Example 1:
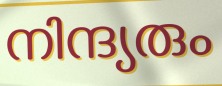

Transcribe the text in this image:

നിന്ദ്യരും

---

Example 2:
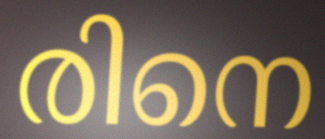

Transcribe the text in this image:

രിനെ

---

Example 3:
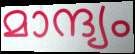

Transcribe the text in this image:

മാന്ദ്യം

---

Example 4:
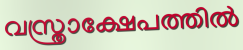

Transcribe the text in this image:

വസ്ത്രാക്ഷേപത്തിൽ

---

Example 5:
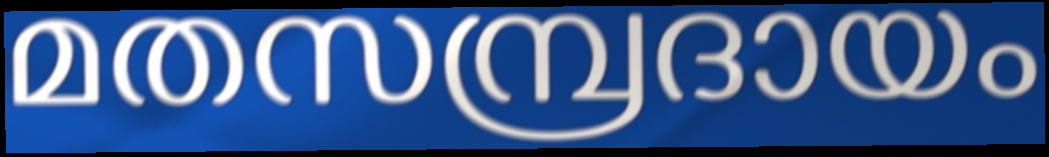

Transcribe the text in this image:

മതസമ്പ്രദായം